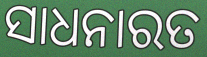
ସାଧନାରତ